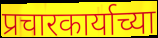
प्रचारकार्याच्या